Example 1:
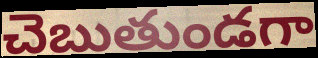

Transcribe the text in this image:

చెబుతుండగా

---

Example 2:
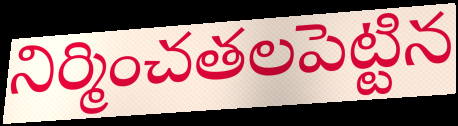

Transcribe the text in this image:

నిర్మించతలపెట్టిన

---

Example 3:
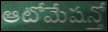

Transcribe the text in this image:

ఆటోమేషన్తో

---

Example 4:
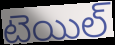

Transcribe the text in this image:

టెయిల్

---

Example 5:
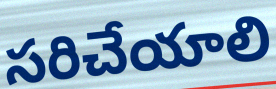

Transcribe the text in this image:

సరిచేయాలి